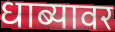
धाब्यावर